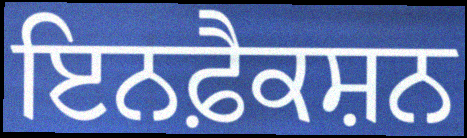
ਇਨਫ਼ੈਕਸ਼ਨ